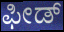
ಫೀಡ್